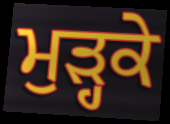
ਮੁੜ੍ਹਕੇ